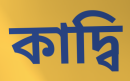
কাদ্বি